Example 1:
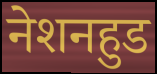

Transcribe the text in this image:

नेशनहुड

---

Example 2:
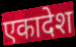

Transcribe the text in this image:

एकादेश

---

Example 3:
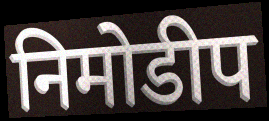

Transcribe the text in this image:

निमोडीप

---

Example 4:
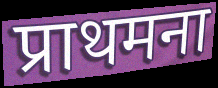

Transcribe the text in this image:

प्राथमना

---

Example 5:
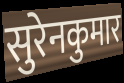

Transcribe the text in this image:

सुरेनकुमार